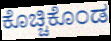
ಕೊಚ್ಚಿಕೊಂಡ